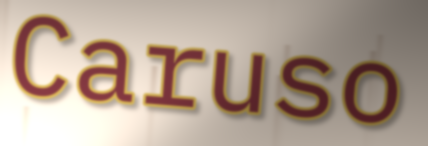
Caruso